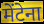
मेंटेना